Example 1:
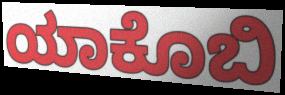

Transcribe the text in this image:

ಯಾಕೊಬಿ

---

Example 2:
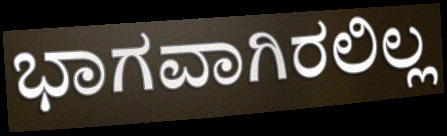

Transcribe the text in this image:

ಭಾಗವಾಗಿರಲಿಲ್ಲ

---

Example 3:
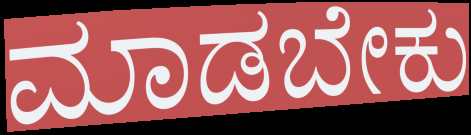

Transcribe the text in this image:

ಮಾಡಬೇಕು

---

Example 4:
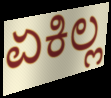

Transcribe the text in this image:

ಏಕಿಲ್ಲ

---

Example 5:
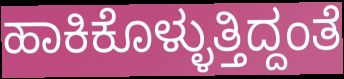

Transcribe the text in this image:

ಹಾಕಿಕೊಳ್ಳುತ್ತಿದ್ದಂತೆ